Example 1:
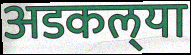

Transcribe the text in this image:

अडकल्या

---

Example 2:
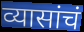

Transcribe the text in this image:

व्यासांचं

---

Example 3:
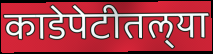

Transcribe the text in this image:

काडेपेटीतल्या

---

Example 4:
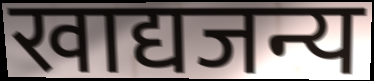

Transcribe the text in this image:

खाद्यजन्य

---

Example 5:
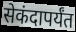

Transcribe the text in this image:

सेकंदापर्यंत